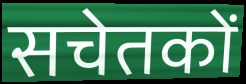
सचेतकों